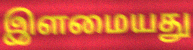
இளமையது